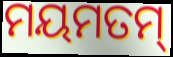
ମୟମତମ୍